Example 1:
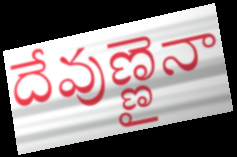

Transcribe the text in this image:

దేవుణ్ణైనా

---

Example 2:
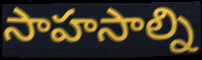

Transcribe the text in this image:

సాహసాల్ని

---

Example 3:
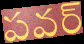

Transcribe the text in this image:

పవర్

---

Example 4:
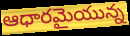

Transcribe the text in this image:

ఆధారమైయున్న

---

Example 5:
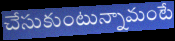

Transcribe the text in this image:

చేసుకుంటున్నామంటే